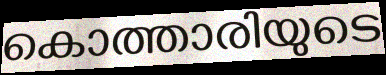
കൊത്താരിയുടെ